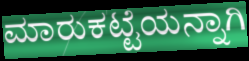
ಮಾರುಕಟ್ಟೆಯನ್ನಾಗಿ